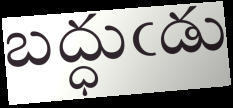
బద్ధుఁడు